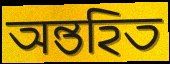
অন্তহিত